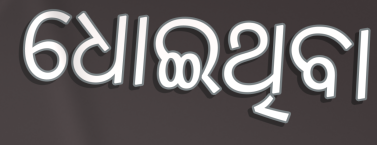
ଧୋଇଥିବା